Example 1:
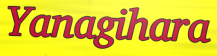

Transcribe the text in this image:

Yanagihara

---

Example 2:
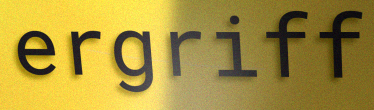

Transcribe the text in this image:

ergriff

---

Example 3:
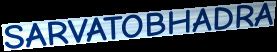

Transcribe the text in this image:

SARVATOBHADRA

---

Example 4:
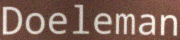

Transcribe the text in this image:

Doeleman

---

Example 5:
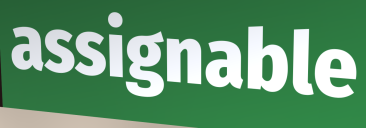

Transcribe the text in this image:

assignable